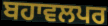
ਬਹਾਵਲਪਰ